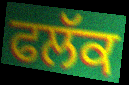
ਫਲੱਕ